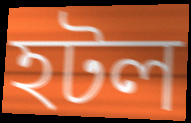
হটল